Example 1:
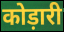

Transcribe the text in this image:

कोड़ारी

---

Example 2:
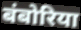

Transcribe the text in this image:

बंबोरिया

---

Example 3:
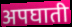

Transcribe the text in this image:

अपघाती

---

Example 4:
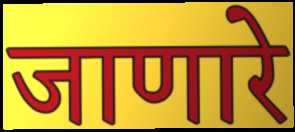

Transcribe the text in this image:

जाणारे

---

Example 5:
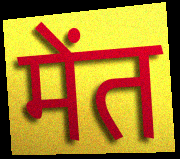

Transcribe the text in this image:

मेंत